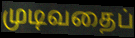
முடிவதைப்